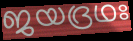
ജയദ്രഥഃ